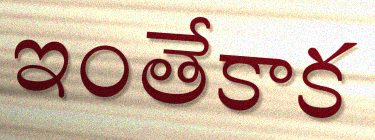
ఇంతేకాక